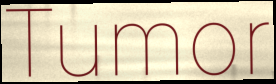
Tumor